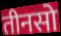
तीनसो